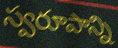
స్వరూపాన్ని